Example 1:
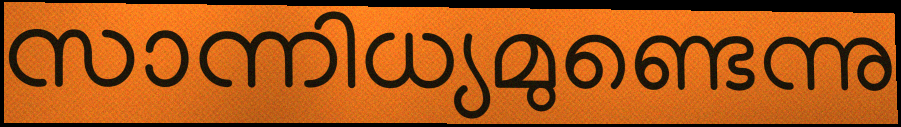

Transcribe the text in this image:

സാന്നിധ്യമുണ്ടെന്നു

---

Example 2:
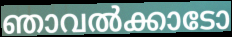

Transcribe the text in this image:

ഞാവൽക്കാടോ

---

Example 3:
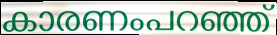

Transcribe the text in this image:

കാരണംപറഞ്ഞ്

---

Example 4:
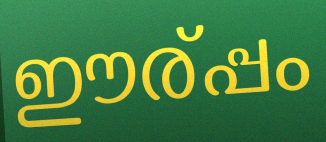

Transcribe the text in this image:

ഈര്പ്പം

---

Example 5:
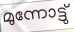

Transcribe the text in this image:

മുന്നോട്ടു്